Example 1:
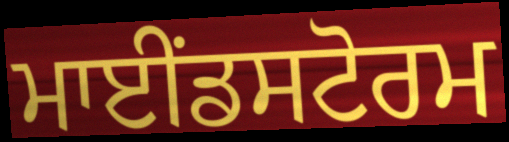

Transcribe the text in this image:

ਮਾਈਂਡਸਟੋਰਮ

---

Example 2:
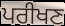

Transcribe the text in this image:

ਪਰੀਖਣ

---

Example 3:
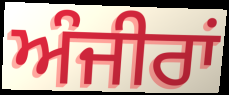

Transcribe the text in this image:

ਅੰਜੀਰਾਂ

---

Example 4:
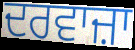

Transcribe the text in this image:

ਦਰਵਾਜ਼ਾ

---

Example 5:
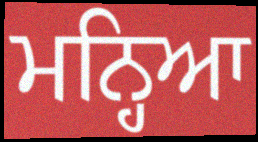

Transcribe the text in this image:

ਮਨ੍ਹਿਆ